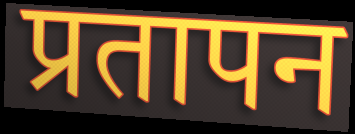
प्रतापन